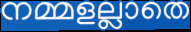
നമ്മളല്ലാതെ